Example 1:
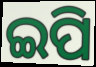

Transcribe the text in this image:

ଇପି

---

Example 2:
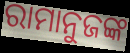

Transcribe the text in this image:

ରାମାନୁଜଙ୍କ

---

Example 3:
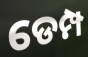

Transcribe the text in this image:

ଡେମ୍ପ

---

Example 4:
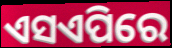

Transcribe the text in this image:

ଏସଏପିରେ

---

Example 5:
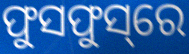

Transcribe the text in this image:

ଫୁସଫୁସ୍‌ରେ